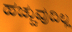
ಹಚ್ಚುವುದಿಲ್ಲ